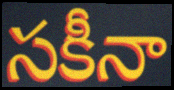
సకీనా